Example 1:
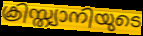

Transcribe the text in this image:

ക്രിസ്ത്യാനിയുടെ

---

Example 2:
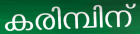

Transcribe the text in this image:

കരിമ്പിന്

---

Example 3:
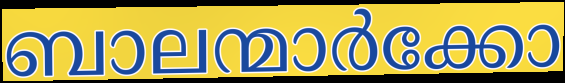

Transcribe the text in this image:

ബാലന്മാർക്കോ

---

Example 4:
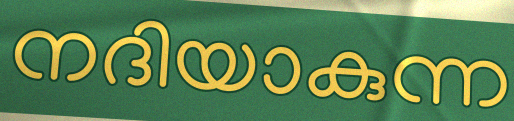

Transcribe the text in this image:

നദിയാകുന്ന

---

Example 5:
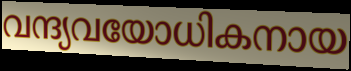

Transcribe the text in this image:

വന്ദ്യവയോധികനായ